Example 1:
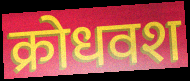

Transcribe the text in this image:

क्रोधवश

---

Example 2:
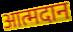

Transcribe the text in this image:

आत्मदान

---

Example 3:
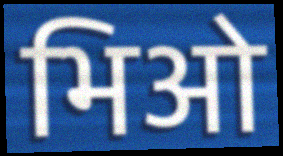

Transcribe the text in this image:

भिओ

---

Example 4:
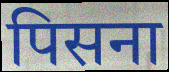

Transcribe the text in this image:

पिसना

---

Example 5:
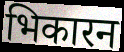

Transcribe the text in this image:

भिकारन